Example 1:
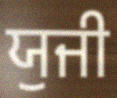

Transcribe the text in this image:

ਯੁਜੀ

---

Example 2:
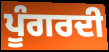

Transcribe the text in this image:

ਪੂੰਗਰਦੀ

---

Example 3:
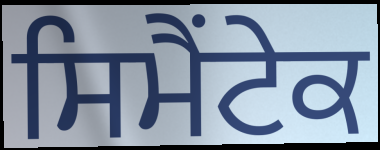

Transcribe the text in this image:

ਸਿਮੈਂਟੇਕ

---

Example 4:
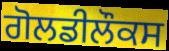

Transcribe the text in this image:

ਗੋਲਡੀਲੌਕਸ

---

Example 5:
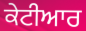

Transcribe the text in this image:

ਕੇਟੀਆਰ